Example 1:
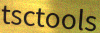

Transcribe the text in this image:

tsctools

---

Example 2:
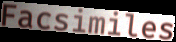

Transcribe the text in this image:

Facsimiles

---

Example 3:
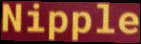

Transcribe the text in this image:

Nipple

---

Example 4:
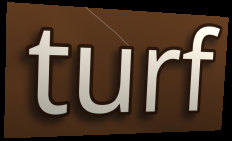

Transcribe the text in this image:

turf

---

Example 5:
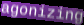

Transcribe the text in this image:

agonizing